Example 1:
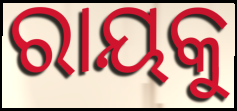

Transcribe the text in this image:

ରାୟକୁ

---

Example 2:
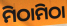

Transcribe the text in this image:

ମିଠାମିଠା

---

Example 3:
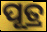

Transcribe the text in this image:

ପୂତ୍ର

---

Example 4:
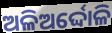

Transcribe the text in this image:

ଅଳିଅର୍ଦ୍ଦୋଳି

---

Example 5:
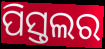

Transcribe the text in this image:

ପିସ୍ତଲର